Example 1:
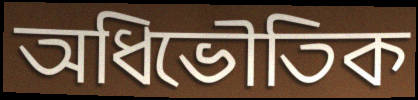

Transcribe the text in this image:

অধিভৌতিক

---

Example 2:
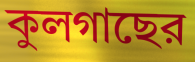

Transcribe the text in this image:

কুলগাছের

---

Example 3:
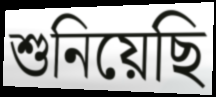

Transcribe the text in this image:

শুনিয়েছি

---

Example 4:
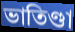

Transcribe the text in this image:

ভাতিণ্ডা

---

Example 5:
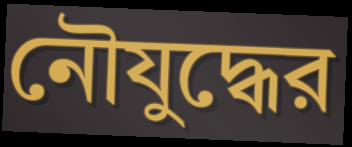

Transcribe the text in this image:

নৌযুদ্ধের